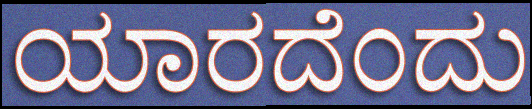
ಯಾರದೆಂದು